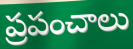
ప్రపంచాలు